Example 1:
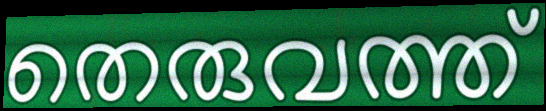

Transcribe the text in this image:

തെരുവത്ത്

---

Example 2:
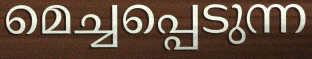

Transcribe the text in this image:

മെച്ചപ്പെടുന്ന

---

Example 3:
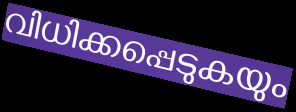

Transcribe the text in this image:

വിധിക്കപ്പെടുകയും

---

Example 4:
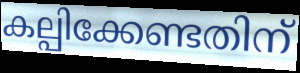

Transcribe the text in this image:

കല്പിക്കേണ്ടതിന്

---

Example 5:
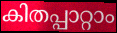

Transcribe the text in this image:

കിതപ്പാറ്റാം